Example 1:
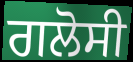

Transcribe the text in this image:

ਗਲੋਸੀ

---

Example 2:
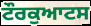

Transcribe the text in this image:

ਟੌਰਕੁਆਟਸ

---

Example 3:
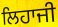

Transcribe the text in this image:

ਲਿਹਾਜੀ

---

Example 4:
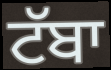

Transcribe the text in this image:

ਟੱਬਾ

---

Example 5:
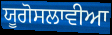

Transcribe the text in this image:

ਯੂਗੋਸਲਾਵੀਆ